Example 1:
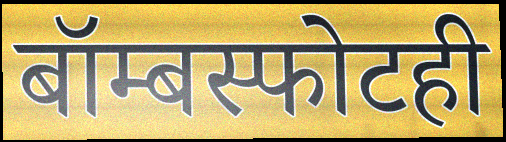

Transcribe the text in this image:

बॉम्बस्फोटही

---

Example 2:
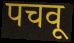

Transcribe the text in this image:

पचवू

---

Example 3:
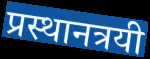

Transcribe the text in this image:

प्रस्थानत्रयी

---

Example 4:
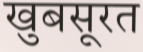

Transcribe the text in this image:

खुबसूरत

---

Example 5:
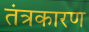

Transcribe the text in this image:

तंत्रकारण